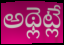
అథ్లెట్లే